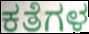
ಕತೆಗಳ